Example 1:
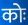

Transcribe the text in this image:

कोः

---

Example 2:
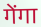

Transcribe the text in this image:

गेंगा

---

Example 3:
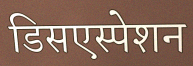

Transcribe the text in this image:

डिसएस्पेशन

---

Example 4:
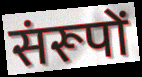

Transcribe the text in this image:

संरूपों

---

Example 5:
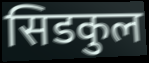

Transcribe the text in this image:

सिडकुल